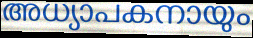
അധ്യാപകനായും